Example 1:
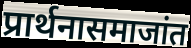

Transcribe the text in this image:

प्रार्थनासमाजांत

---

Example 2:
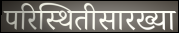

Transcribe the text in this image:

परिस्थितीसारख्या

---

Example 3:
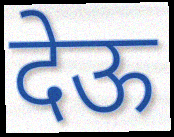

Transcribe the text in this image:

देऊ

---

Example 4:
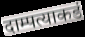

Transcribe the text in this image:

दाम्पत्याकडं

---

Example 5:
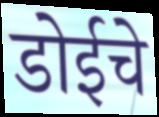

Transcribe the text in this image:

डोईचे